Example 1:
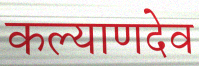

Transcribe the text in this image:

कल्याणदेव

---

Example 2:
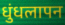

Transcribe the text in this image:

धुंधलापन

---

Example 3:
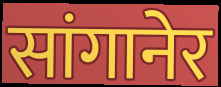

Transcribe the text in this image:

सांगानेर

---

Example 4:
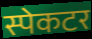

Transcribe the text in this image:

स्पेकटर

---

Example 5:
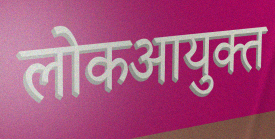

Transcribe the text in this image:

लोकआयुक्त